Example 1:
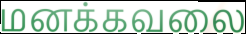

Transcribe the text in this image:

மனக்கவலை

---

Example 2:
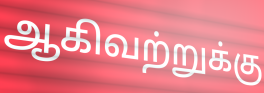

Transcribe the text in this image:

ஆகிவற்றுக்கு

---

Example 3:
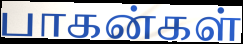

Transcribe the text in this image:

பாகன்கள்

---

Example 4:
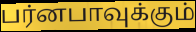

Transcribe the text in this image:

பர்னபாவுக்கும்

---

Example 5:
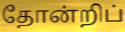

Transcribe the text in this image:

தோன்றிப்